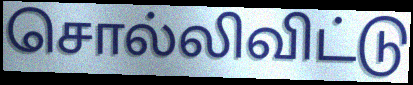
சொல்லிவிட்டு